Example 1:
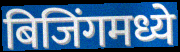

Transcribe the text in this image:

बिजिंगमध्ये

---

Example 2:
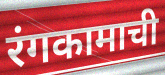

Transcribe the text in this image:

रंगकामाची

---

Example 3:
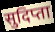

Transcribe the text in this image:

सुदिप्ता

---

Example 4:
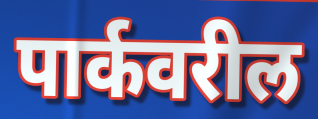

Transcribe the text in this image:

पार्कवरील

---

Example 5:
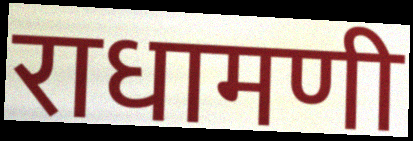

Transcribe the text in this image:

राधामणी